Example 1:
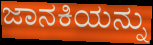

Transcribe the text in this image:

ಜಾನಕಿಯನ್ನು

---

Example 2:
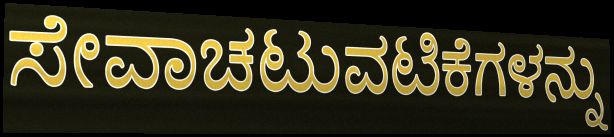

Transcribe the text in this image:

ಸೇವಾಚಟುವಟಿಕೆಗಳನ್ನು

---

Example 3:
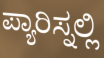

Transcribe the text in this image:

ಪ್ಯಾರಿಸ್ನಲ್ಲಿ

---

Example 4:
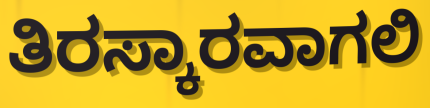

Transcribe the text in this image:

ತಿರಸ್ಕಾರವಾಗಲಿ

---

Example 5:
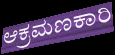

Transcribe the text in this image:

ಆಕ್ರಮಣಕಾರಿ